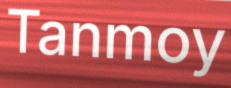
Tanmoy